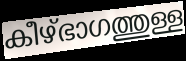
കീഴ്ഭാഗത്തുള്ള